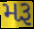
મરૂ